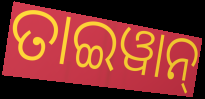
ତାଇୱାନ୍